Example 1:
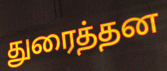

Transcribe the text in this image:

துரைத்தன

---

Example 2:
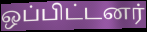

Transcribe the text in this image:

ஒப்பிட்டனர்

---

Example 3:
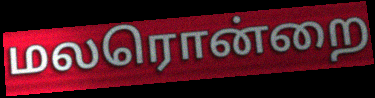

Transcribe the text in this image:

மலரொன்றை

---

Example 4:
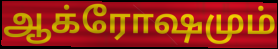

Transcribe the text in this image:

ஆக்ரோஷமும்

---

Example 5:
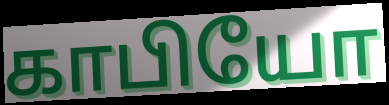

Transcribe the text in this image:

காபியோ